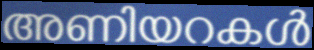
അണിയറകൾ